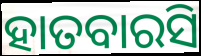
ହାତବାରସି